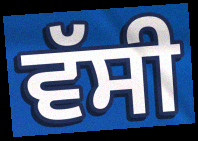
ਵੱਸੀ